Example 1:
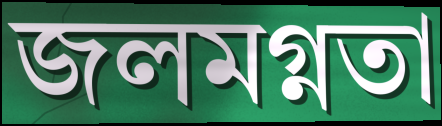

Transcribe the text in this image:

জলমগ্নতা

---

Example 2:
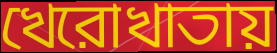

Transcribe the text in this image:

খেরোখাতায়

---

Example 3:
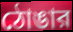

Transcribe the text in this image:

ঠোঙার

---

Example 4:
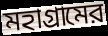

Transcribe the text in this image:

মহাগ্রামের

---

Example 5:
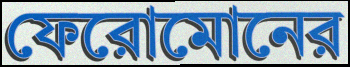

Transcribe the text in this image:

ফেরোমোনের